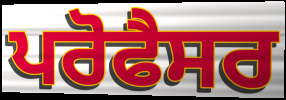
ਪਰੋਫੈਸਰ